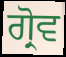
ਗ੍ਰੋਵ